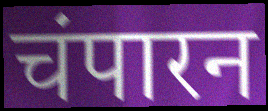
चंपारन